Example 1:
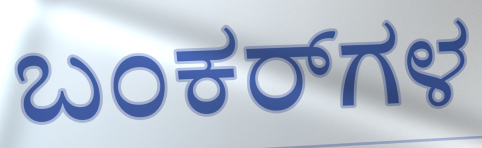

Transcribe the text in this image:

ಬಂಕರ್‌ಗಳ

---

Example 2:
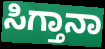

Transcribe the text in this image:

ಸಿಗ್ತಾನಾ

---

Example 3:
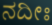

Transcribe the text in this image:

ನದೀಃ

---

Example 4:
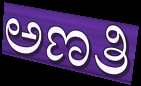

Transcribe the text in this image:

ಅಣತಿ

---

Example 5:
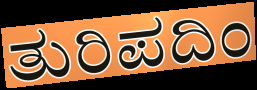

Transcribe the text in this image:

ತುರಿಪದಿಂ